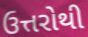
ઉત્તરોથી